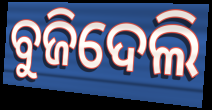
ବୁଜିଦେଲି